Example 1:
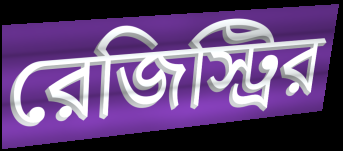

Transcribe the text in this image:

রেজিস্ট্রির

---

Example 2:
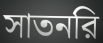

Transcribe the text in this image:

সাতনরি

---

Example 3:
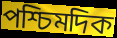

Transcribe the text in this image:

পশ্চিমদিক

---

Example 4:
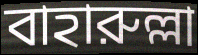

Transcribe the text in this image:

বাহারুল্লা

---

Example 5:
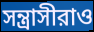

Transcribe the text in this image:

সন্ত্রাসীরাও